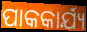
ପାକକାର୍ଯ୍ୟ